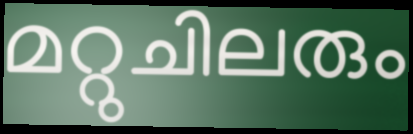
മറ്റുചിലരും